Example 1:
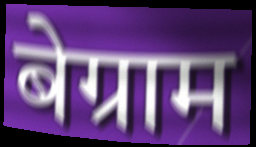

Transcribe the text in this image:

बेग्राम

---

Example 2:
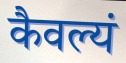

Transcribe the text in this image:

कैवल्यं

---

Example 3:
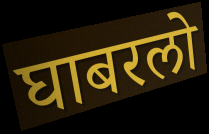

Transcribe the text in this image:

घाबरलो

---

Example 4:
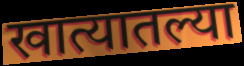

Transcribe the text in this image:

खात्यातल्या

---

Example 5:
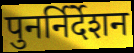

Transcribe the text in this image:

पुनर्निर्देशन